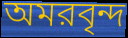
অমরবৃন্দ